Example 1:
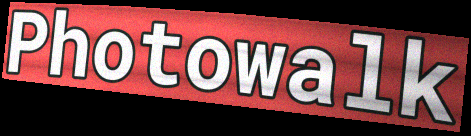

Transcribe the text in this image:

Photowalk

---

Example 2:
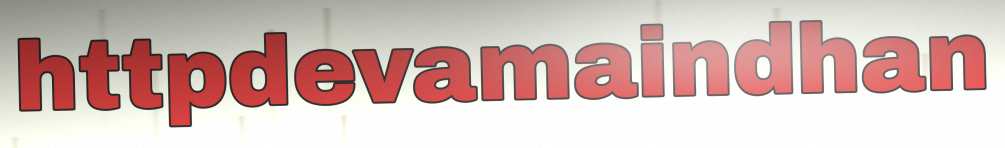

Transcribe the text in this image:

httpdevamaindhan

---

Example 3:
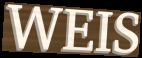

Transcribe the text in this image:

WEIS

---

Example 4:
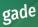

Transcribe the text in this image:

gade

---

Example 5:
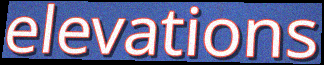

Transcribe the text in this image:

elevations